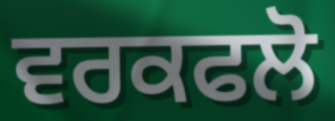
ਵਰਕਫਲੋ